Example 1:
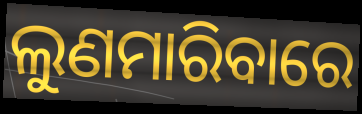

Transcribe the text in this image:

ଲୁଣମାରିବାରେ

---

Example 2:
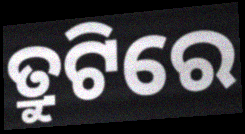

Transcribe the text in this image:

ତ୍ରୁଟିରେ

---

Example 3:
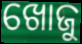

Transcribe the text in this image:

ଖୋଜୁ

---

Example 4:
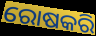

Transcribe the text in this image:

ରୋଷକରି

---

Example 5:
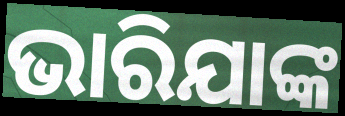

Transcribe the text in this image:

ଭାରିଯାଙ୍କ